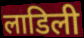
लाडिली